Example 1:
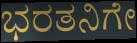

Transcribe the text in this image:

ಭರತನಿಗೇ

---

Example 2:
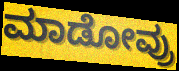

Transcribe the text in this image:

ಮಾಡೋವ್ರು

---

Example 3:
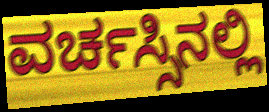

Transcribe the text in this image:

ವರ್ಚಸ್ಸಿನಲ್ಲಿ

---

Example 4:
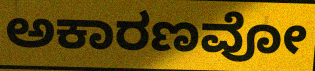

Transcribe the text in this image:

ಅಕಾರಣವೋ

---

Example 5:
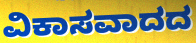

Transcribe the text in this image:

ವಿಕಾಸವಾದದ